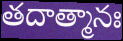
తదాత్మానః